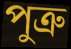
পুত্রু